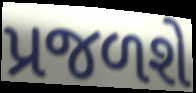
પ્રજળશે